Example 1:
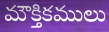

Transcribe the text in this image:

మౌక్తికములు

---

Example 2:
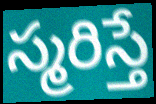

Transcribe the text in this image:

స్మరిస్తే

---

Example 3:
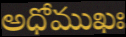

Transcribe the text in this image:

అధోముఖః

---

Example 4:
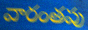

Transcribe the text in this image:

వారంతపు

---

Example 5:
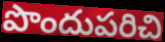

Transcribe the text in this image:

పొందుపరిచి